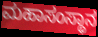
ಮಹಾಸಂಸ್ಥಾನ